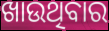
ଖାଉଥିବାର